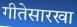
गीतेसारखा